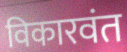
विकारवंत